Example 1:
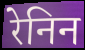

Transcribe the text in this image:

रेनिन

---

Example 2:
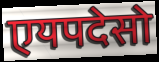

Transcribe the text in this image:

एयपदेसो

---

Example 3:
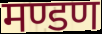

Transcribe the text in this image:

मण्डण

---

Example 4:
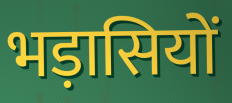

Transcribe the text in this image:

भड़ासियों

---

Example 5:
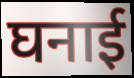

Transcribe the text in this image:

घनाई